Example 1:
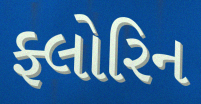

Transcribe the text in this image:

ફ્લોરિન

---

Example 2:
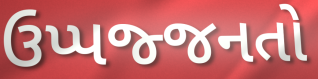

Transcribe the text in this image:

ઉપ્પજ્જનતો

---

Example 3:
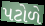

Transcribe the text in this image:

પટોળે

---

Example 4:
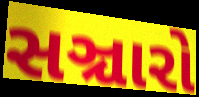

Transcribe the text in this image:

સઞ્ચારો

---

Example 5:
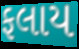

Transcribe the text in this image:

ફલાય